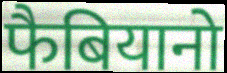
फैबियानो